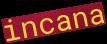
incana